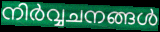
നിർവ്വചനങ്ങൾ